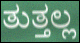
ತುತ್ತಲ್ಲ